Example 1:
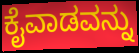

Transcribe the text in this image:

ಕೈವಾಡವನ್ನು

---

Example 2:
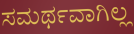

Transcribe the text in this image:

ಸಮರ್ಥವಾಗಿಲ್ಲ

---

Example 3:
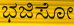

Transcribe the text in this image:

ಭಜಿಸೋ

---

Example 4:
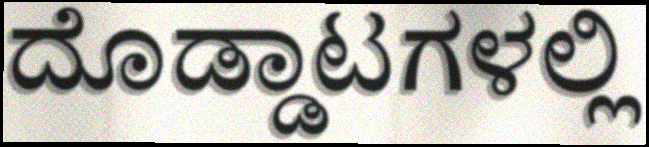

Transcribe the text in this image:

ದೊಡ್ಡಾಟಗಳಲ್ಲಿ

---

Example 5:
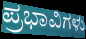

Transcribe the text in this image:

ಪ್ರಭಾವಿಗಳು